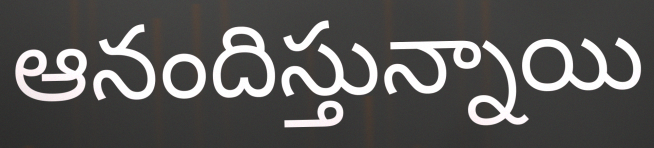
ఆనందిస్తున్నాయి